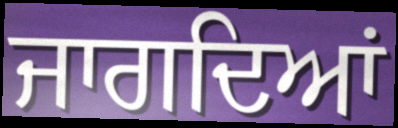
ਜਾਗਦਿਆਂ